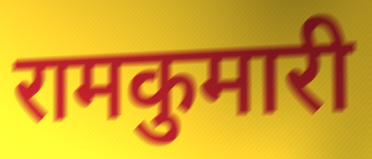
रामकुमारी